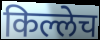
किल्लेच